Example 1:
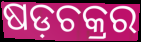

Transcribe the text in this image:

ଷଡ଼ଚକ୍ରର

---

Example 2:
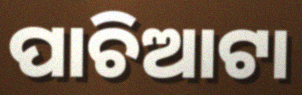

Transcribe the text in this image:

ପାଚିଆଟା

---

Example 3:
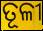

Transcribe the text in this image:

ତୂଳୀ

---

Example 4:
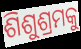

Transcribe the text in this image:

ଶିଶୁଶ୍ରମକୁ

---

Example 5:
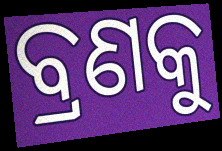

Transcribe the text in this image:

ବ୍ରଣକୁ